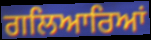
ਗਲਿਆਰਿਆਂ